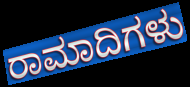
ರಾಮಾದಿಗಳು